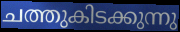
ചത്തുകിടക്കുന്നു